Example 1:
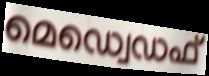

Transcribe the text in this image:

മെഡ്വെഡഫ്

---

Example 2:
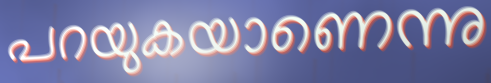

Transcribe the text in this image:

പറയുകയാണെന്നു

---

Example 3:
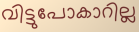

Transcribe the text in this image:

വിട്ടുപോകാറില്ല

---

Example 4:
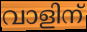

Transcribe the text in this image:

വാളിന്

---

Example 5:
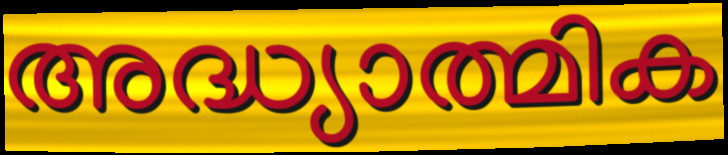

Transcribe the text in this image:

അദ്ധ്യാത്മിക